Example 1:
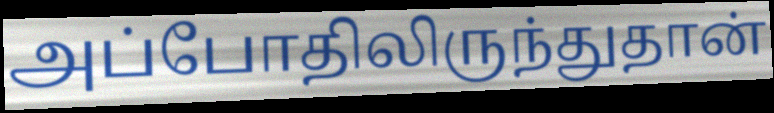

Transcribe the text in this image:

அப்போதிலிருந்துதான்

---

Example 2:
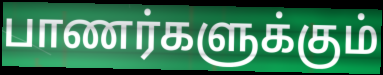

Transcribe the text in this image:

பாணர்களுக்கும்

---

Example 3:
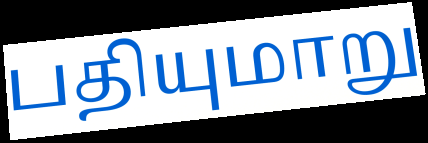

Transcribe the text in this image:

பதியுமாறு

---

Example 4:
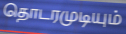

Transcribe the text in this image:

தொடரமுடியும்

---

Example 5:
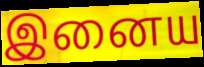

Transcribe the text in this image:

இனைய